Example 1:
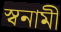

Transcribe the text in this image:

স্বনামী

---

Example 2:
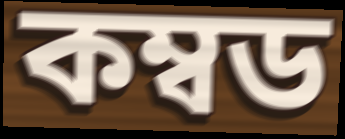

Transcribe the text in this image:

কম্বড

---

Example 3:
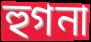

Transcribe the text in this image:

হুগনা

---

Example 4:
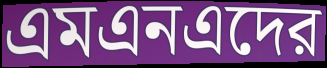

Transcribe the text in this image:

এমএনএদের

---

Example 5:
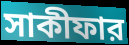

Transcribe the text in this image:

সাকীফার